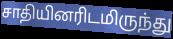
சாதியினரிடமிருந்து